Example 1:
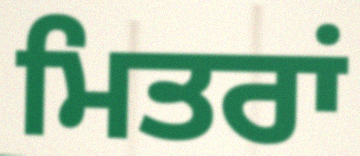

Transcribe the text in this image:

ਮਿਤਰਾਂ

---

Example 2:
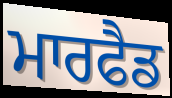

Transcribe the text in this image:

ਮਾਰਫੈਡ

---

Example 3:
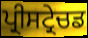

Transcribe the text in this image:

ਪ੍ਰੀਸਟ੍ਰੇਚਡ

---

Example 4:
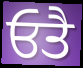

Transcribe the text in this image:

ਓਤੈ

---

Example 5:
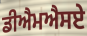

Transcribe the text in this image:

ਡੀਐਮਐਸਏ